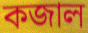
কজাল